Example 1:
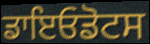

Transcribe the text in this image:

ਡਾਇਓਡੋਟਸ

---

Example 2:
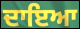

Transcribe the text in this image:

ਦਾਇਆ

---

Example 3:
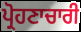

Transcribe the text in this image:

ਪ੍ਰੋਹਣਾਚਾਰੀ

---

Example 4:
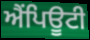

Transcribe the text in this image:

ਐਂਪਿਊਟੀ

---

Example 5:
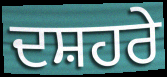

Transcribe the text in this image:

ਦਸ਼ਹਰੇ